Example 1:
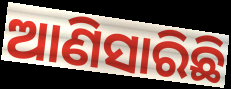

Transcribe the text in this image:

ଆଣିସାରିଛି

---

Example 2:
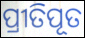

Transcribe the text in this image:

ପ୍ରୀତିପୂତ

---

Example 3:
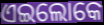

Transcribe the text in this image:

ଏଇଲୋକେ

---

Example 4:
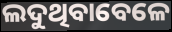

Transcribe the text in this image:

ଲଦୁଥିବାବେଳେ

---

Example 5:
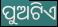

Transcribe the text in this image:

ପୁଅଟିଏ